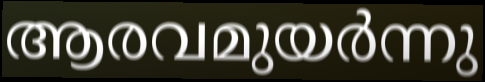
ആരവമുയർന്നു